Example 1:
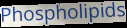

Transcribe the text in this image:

Phospholipids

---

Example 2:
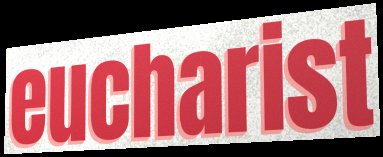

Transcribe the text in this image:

eucharist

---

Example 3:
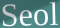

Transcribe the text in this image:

Seol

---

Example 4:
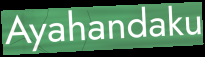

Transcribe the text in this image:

Ayahandaku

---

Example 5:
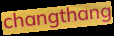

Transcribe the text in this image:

changthang